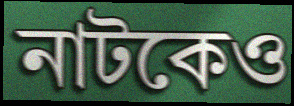
নাটকেও